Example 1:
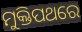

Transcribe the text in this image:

ମୁକ୍ତିପଥରେ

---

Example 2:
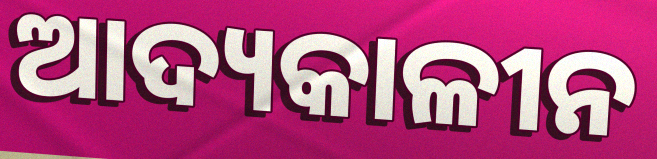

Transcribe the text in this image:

ଆଦ୍ୟକାଳୀନ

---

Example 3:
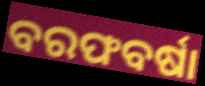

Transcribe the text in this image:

ବରଫବର୍ଷା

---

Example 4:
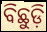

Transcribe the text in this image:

ବିଛୁଡ଼ି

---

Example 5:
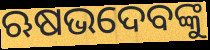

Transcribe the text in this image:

ଋଷଭଦେବଙ୍କୁ